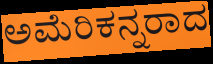
ಅಮೆರಿಕನ್ನರಾದ